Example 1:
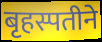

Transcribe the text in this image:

बृहस्पतीने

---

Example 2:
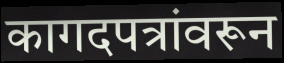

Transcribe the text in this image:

कागदपत्रांवरून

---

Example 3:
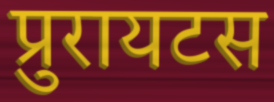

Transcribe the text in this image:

प्रुरायटस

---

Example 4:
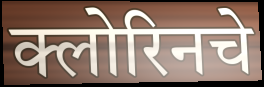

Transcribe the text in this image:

क्लोरिनचे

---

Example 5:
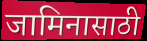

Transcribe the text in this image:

जामिनासाठी